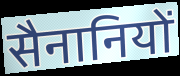
सैनानियों